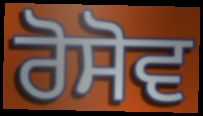
ਰੋਸੋਵ